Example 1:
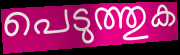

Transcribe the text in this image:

പെടുത്തുക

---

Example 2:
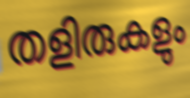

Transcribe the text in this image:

തളിരുകളും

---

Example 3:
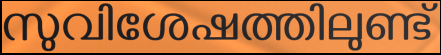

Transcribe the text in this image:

സുവിശേഷത്തിലുണ്ട്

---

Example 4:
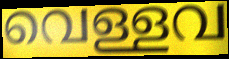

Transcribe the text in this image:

വെള്ളവ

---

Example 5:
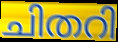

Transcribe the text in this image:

ചിതറി